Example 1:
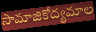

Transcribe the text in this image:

సామాజికోద్యమాల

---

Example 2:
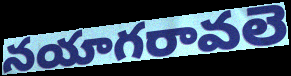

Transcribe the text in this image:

నయాగరావలె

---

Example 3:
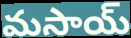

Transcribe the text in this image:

మసాయ్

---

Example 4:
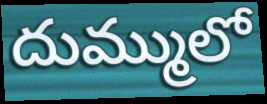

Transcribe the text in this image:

దుమ్ములో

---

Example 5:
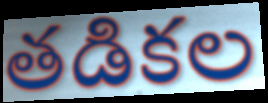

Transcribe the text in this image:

తడికల